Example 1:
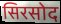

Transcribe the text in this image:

सिरसोद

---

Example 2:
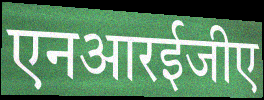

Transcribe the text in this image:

एनआरईजीए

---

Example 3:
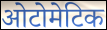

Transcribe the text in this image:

ओटोमेटिक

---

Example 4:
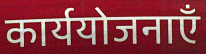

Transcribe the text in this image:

कार्ययोजनाएँ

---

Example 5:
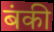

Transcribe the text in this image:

बंकी